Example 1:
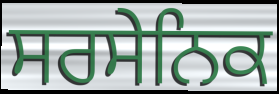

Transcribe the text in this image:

ਸਰਸੇਨਿਕ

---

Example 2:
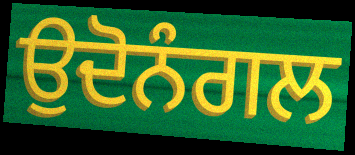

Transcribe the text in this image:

ਉਦੋਨੰਗਲ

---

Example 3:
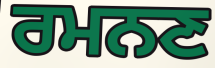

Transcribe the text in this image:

ਰਮਨਣ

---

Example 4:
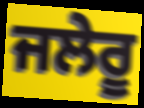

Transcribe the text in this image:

ਜਲੇਰੂ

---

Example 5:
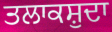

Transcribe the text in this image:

ਤਲਾਕਸ਼ੁਦਾ